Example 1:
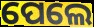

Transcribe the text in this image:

ପେଲେ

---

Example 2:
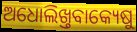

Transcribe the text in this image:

ଅଧୋଲିଖ୍ତବାକ୍ୟେଷୁ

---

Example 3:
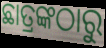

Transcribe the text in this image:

ଛାତ୍ରଙ୍କଠାରୁ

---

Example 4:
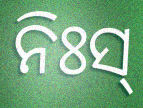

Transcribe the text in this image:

ନିଃସ୍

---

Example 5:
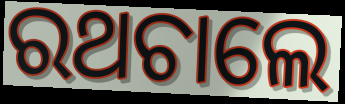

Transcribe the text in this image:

ରଥଚାଲେ